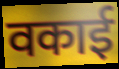
वकाई